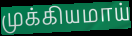
முக்கியமாய்